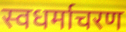
स्वधर्माचरण